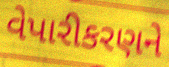
વેપારીકરણને